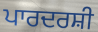
ਪਾਰਦਰਸ਼ੀ